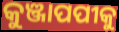
କୁଞ୍ଜାପପୀକୁ